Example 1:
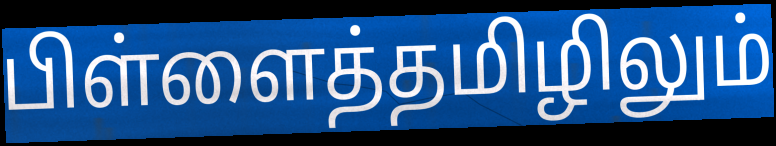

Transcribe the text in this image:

பிள்ளைத்தமிழிலும்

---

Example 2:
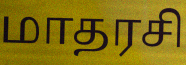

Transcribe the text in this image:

மாதரசி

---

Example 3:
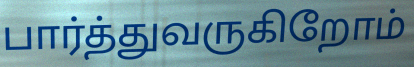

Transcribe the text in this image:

பார்த்துவருகிறோம்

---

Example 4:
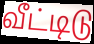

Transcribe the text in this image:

வீட்டிடு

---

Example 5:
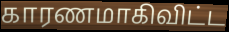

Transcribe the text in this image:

காரணமாகிவிட்ட